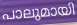
പാലുമായി